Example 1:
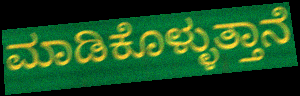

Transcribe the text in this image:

ಮಾಡಿಕೊಳ್ಳುತ್ತಾನೆ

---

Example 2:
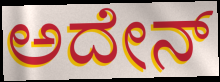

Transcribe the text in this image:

ಅದೇನ್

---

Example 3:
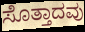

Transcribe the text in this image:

ಸೊತ್ತಾದವು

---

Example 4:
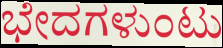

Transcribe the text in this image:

ಭೇದಗಳುಂಟು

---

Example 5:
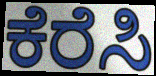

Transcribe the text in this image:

ಕೆರೆಸಿ